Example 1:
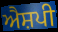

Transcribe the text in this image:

ਐਸ਼ਪੀ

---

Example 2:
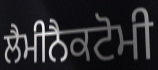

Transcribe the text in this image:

ਲੈਮੀਨੈਕਟੋਮੀ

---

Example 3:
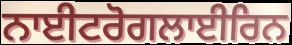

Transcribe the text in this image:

ਨਾਈਟਰੋਗਲਾਈਰਿਨ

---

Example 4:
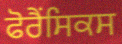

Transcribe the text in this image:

ਫੋਰੈਂਸਿਕਸ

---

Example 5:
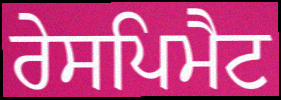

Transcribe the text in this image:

ਰੇਸਪਿਮੈਟ